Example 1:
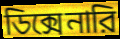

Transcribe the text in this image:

ডিক্সেনারি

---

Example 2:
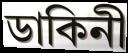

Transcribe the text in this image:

ডাকিনী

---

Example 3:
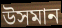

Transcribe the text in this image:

উসমান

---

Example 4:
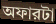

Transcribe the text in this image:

অফারটা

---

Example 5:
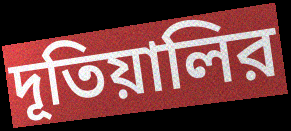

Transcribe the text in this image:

দূতিয়ালির